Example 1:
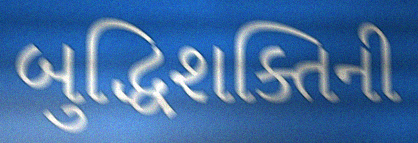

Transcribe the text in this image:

બુદ્ધિશક્તિની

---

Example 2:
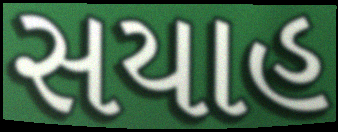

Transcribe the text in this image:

સયાહ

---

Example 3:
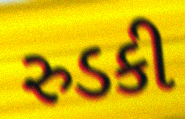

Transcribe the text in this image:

રુડકી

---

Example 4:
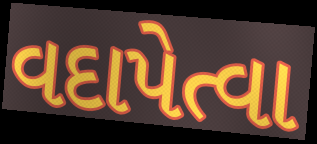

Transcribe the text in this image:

વદાપેત્વા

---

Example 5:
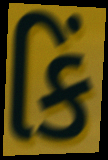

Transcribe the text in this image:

કિં